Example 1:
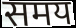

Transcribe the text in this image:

समय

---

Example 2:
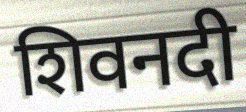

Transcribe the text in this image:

शिवनदी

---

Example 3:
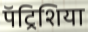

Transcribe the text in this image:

पॅट्रिशिया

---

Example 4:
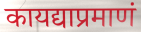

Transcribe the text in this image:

कायद्याप्रमाणं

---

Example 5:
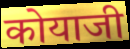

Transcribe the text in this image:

कोयाजी